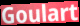
Goulart